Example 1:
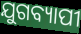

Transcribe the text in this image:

ଯୁଗବ୍ୟାପୀ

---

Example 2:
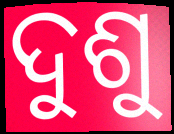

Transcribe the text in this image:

ଦୁଶୁ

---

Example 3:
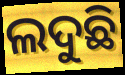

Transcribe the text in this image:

ଲଦୁଛି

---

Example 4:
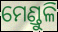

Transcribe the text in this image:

ମେଣ୍ଡୁଳି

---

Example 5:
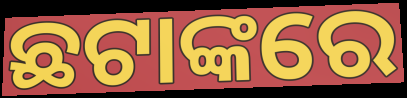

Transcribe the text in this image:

ଛଟାଙ୍କରେ